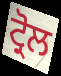
ਟ੍ਰੋਲ